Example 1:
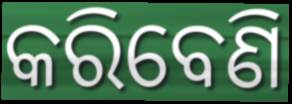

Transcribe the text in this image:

କରିବେଣି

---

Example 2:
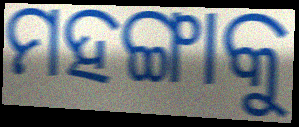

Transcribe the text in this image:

ମହଙ୍ଗାକୁ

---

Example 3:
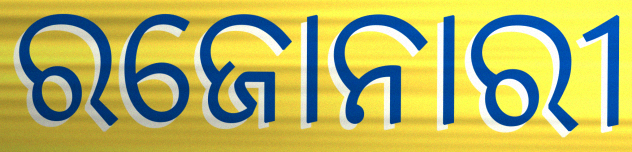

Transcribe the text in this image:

ରଜୋନାରୀ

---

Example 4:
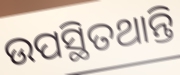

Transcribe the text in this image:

ଉପସ୍ଥିତଥାନ୍ତି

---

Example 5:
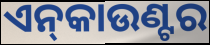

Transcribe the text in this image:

ଏନ୍‌କାଉଣ୍ଟର